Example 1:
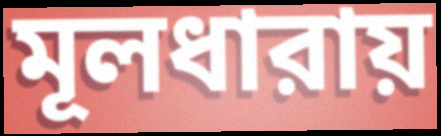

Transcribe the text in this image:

মূলধারায়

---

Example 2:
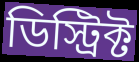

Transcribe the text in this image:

ডিস্ট্রিক্ট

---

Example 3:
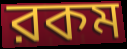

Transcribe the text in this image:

রকম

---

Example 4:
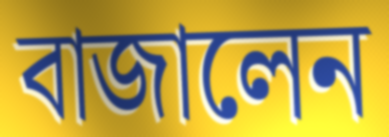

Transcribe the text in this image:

বাজালেন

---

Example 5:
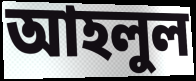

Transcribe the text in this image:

আহলুল